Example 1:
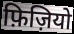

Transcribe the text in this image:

फ़िज़ियो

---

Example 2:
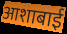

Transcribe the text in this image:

आशाबाई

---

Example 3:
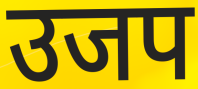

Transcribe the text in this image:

उजप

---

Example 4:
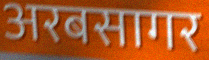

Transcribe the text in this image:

अरबसागर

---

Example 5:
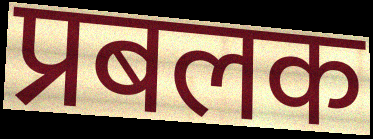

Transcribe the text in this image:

प्रबलक